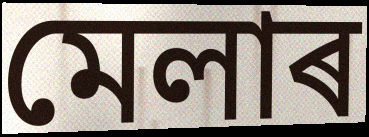
মেলাৰ